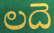
లదె